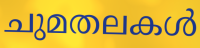
ചുമതലകൾ